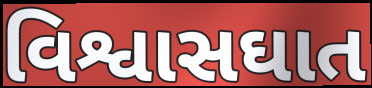
વિશ્વાસઘાત